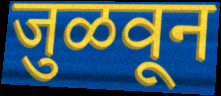
जुळवून